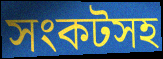
সংকটসহ